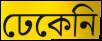
ঢেকেনি